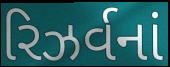
રિઝર્વનાં